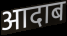
आदाब